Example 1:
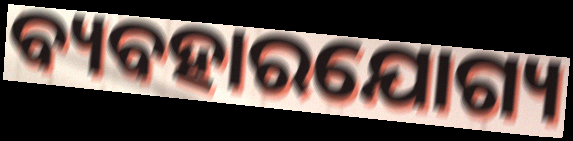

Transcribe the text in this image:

ବ୍ୟବହାରଯୋଗ୍ୟ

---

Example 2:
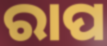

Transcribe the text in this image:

ରାପ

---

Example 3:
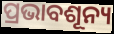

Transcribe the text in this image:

ପ୍ରଭାବଶୂନ୍ୟ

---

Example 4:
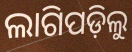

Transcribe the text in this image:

ଲାଗିପଡ଼ିଲୁ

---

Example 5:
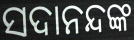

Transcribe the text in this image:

ସଦାନନ୍ଦଙ୍କ